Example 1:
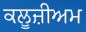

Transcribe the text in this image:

ਕਲੂਜ਼ੀਅਮ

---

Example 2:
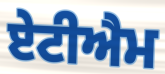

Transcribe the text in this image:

ਏਟੀਐਮ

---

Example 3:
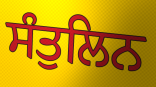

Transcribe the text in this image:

ਸੰਤੁਲਿਨ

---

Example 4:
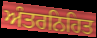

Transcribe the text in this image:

ਅੰਤਰਨਿਹਿਤ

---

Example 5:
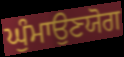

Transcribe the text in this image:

ਘੁੰਮਾਉਣਯੋਗ